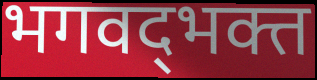
भगवद्भक्त